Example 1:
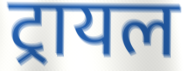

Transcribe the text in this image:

ट्रायल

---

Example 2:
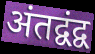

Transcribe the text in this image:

अंतद्वंद्व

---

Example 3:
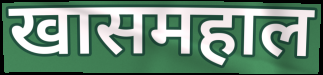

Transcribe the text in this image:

खासमहाल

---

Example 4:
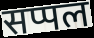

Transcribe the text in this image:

सप्पल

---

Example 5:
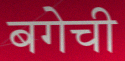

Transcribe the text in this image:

बगेची